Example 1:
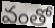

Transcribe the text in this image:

వంతో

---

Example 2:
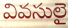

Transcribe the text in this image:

వివసులై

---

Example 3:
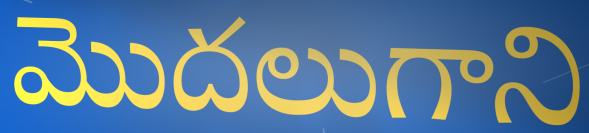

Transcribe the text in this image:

మొదలుగాని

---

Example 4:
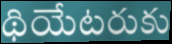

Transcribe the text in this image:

థియేటరుకు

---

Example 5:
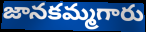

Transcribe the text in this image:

జానకమ్మగారు